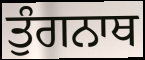
ਤੁੰਗਨਾਥ